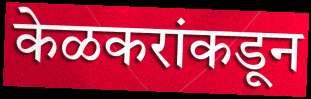
केळकरांकडून